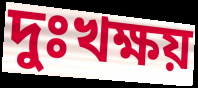
দুঃখক্ষয়